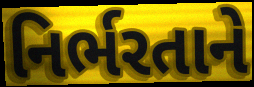
નિર્ભરતાને